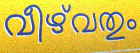
വീഴ്‌വതും